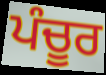
ਪੰਚੂਰ